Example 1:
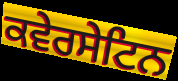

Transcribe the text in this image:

ਕਵੇਰਸੇਟਿਨ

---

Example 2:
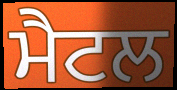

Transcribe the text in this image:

ਮੈਟਲ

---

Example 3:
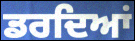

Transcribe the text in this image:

ਡਰਦਿਆਂ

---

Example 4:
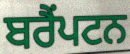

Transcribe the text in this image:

ਬਰੈੰਪਟਨ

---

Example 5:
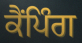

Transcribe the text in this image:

ਕੈਂਪਿੰਗ